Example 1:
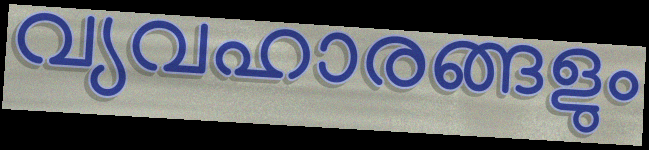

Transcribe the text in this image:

വ്യവഹാരങ്ങളും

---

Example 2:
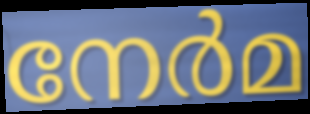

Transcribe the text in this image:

നേർമ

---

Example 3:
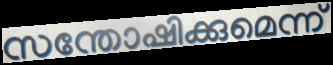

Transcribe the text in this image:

സന്തോഷിക്കുമെന്ന്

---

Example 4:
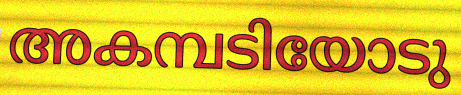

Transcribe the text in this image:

അകമ്പടിയോടു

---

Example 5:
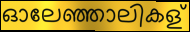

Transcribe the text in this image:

ഓലേഞ്ഞാലികള്